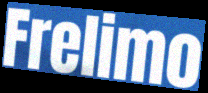
Frelimo